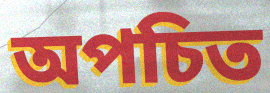
অপচিত